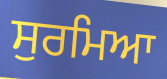
ਸੁਰਮਿਆ